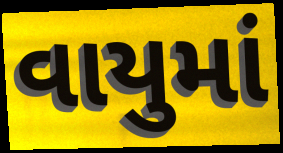
વાયુમાં